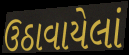
ઉઠાવાયેલાં